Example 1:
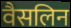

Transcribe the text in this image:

वैसलिन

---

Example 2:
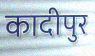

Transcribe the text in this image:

कादीपुर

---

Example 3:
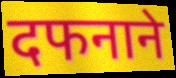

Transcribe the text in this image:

दफनाने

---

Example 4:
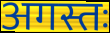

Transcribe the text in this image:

अगस्तः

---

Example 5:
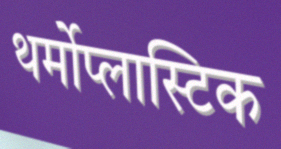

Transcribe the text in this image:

थर्मोप्लास्टिक